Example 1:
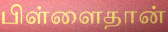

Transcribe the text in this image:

பிள்ளைதான்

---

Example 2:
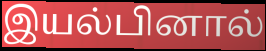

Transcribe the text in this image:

இயல்பினால்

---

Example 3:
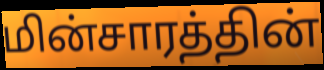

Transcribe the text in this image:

மின்சாரத்தின்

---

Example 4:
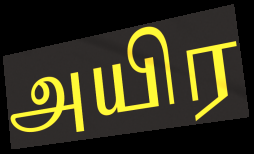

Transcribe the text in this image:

அயிர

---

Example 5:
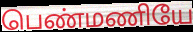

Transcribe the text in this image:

பெண்மணியே